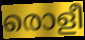
രൊളീ